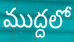
ముద్దలో